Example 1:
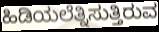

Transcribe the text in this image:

ಹಿಡಿಯಲೆತ್ನಿಸುತ್ತಿರುವ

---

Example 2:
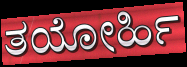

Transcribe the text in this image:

ತಯೋರ್ಹಿ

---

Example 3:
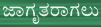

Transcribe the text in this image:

ಜಾಗೃತರಾಗಲು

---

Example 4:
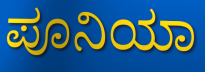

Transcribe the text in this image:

ಪೂನಿಯಾ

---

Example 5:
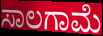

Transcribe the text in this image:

ಸಾಲಗಾಮೆ